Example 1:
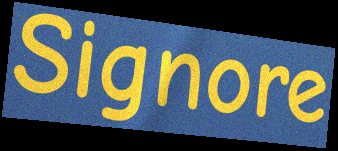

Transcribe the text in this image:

Signore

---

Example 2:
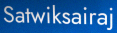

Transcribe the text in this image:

Satwiksairaj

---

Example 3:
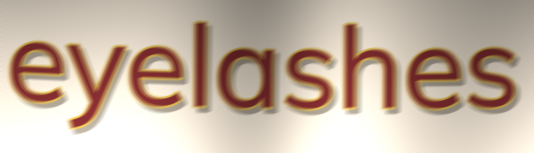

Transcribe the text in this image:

eyelashes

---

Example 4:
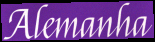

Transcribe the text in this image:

Alemanha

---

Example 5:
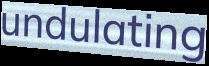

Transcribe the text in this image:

undulating